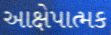
આક્ષેપાત્મક